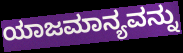
ಯಾಜಮಾನ್ಯವನ್ನು